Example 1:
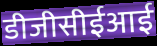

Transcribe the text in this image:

डीजीसीईआई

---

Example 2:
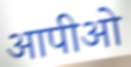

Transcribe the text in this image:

आपीओ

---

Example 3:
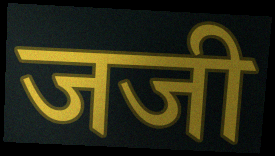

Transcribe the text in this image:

जजी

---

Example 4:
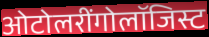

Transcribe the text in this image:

ओटोलरींगोलॉजिस्ट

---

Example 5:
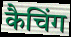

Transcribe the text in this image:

कैचिंग